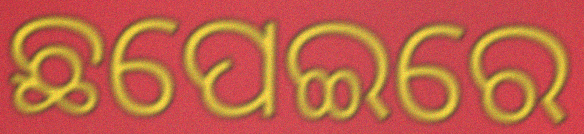
ଛପେଇରେ